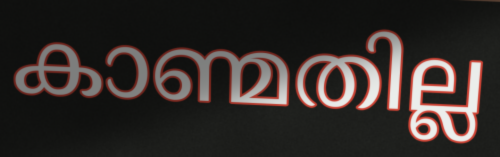
കാണ്മതില്ല